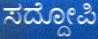
ಸದ್ದೋಪಿ